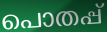
പൊതപ്പ്